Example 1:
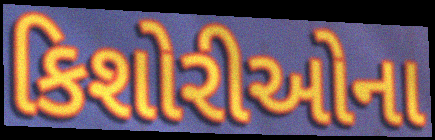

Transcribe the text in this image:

કિશોરીઓના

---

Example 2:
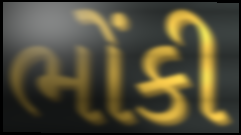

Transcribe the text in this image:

ભોંકી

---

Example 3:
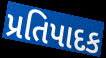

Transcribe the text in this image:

પ્રતિપાદક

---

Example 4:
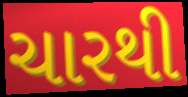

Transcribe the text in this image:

ચારથી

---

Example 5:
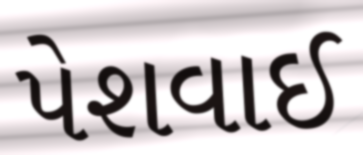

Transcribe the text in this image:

પેશવાઈ